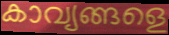
കാവ്യങ്ങളെ